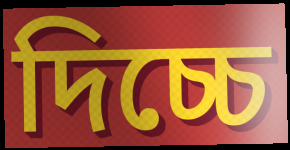
দিচ্চে